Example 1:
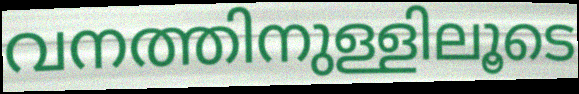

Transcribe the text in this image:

വനത്തിനുള്ളിലൂടെ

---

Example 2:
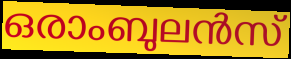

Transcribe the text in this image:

ഒരാംബുലൻസ്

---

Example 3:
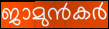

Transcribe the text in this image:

ജാമുൻകർ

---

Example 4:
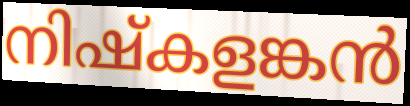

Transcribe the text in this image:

നിഷ്കളങ്കൻ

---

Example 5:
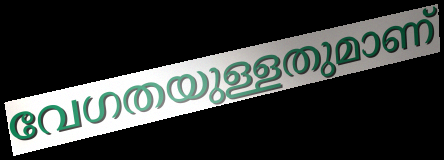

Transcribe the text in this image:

വേഗതയുള്ളതുമാണ്